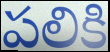
పలికి